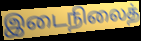
இடைநிலைத்